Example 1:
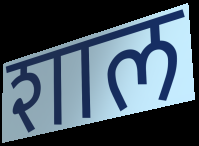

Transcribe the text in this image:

शाल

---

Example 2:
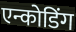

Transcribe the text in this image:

एन्कोडिंग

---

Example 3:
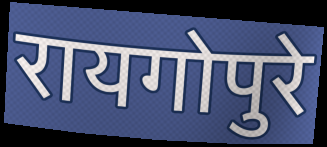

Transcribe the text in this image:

रायगोपुरे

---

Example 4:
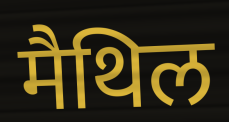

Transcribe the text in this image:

मैथिल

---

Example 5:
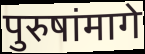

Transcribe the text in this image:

पुरुषांमागे